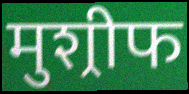
मुश्रीफ